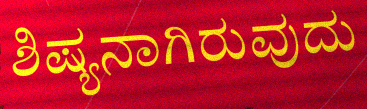
ಶಿಷ್ಯನಾಗಿರುವುದು